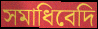
সমাধিবেদি